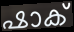
ഷാക്